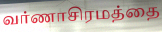
வர்ணாசிரமத்தை